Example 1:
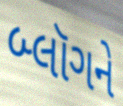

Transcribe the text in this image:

બ્લૉગને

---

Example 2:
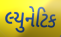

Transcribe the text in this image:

લ્યુનેટિક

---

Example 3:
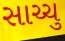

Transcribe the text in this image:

સાચ્ચુ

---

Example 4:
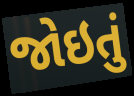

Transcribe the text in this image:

જોઇતું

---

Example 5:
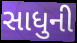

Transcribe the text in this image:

સાધુની